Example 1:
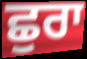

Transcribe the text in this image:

ਛੁਰਾ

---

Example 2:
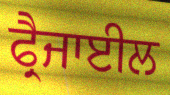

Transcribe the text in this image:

ਫ੍ਰੈਜਾਈਲ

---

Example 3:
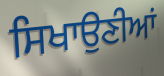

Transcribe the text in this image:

ਸਿਖਾਉਣੀਆਂ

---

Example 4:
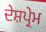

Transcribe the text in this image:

ਦੇਸ਼ਪ੍ਰੇਮ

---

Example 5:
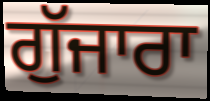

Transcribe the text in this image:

ਗੁੱਜਾਰਾ